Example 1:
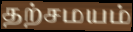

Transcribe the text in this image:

தற்சமயம்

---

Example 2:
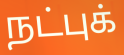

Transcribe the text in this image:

நட்புக்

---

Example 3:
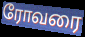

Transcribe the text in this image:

ரோவரை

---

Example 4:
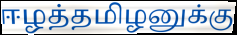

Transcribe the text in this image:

ஈழத்தமிழனுக்கு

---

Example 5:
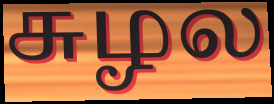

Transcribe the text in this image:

சுழல